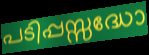
പടിപ്പസ്സദ്ധോ